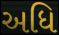
અધિ